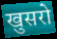
खुसरो